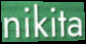
nikita